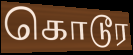
கொடூர